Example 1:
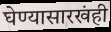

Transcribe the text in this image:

घेण्यासारखंही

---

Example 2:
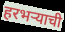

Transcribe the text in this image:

हरभऱ्याची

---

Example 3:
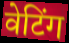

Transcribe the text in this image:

वेटिंग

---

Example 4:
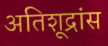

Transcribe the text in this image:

अतिशूद्रांस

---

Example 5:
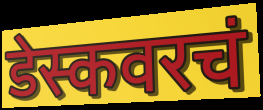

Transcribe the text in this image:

डेस्कवरचं